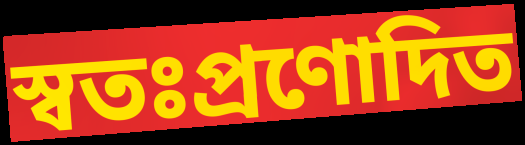
স্বতঃপ্রণোদিত